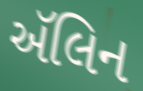
ઍલિન